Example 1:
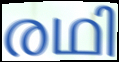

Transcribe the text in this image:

രഥി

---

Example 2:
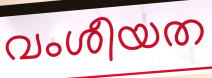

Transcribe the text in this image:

വംശീയത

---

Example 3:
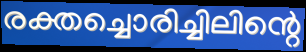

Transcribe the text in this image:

രക്തച്ചൊരിച്ചിലിന്റെ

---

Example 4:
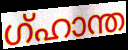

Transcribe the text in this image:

ഗ്ഹാന്ത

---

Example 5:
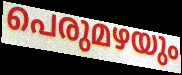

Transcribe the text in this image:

പെരുമഴയും